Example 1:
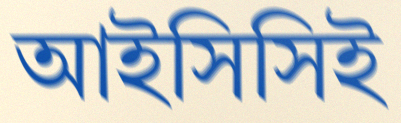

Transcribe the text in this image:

আইসিসিই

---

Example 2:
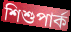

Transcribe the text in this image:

শিশুপার্ক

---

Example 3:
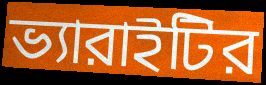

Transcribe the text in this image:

ভ্যারাইটির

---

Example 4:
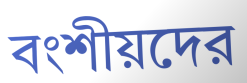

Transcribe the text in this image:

বংশীয়দের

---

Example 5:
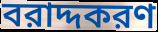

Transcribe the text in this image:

বরাদ্দকরণ